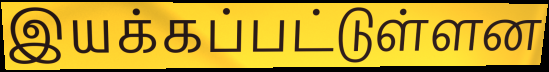
இயக்கப்பட்டுள்ளன